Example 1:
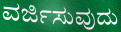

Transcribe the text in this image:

ವರ್ಜಿಸುವುದು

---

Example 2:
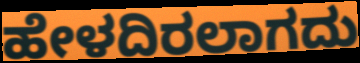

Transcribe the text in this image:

ಹೇಳದಿರಲಾಗದು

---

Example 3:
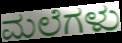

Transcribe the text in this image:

ಮಲೆಗಳು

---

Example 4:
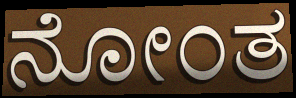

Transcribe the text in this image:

ನೋಂತ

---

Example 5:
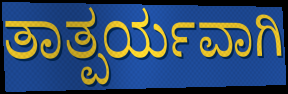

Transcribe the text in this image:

ತಾತ್ಪರ್ಯವಾಗಿ